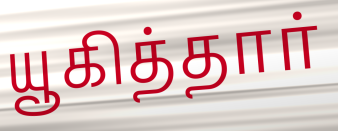
யூகித்தார்